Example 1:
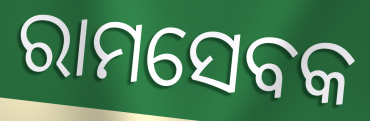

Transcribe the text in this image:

ରାମସେବକ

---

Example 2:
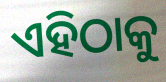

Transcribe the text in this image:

ଏହିଠାକୁ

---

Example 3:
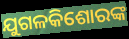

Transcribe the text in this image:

ଯୁଗଳକିଶୋରଙ୍କ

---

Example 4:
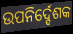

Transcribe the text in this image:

ଉପନିର୍ଦ୍ଦେଶକ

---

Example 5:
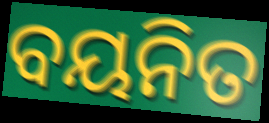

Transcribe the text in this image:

ବୟନିତ